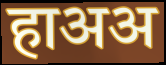
हाअअ